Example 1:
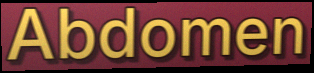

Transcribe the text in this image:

Abdomen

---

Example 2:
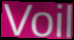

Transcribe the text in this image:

Voil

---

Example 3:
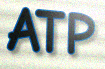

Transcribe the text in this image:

ATP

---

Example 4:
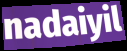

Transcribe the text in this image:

nadaiyil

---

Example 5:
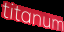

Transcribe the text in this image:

titanum